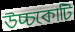
উচ্চকোটি